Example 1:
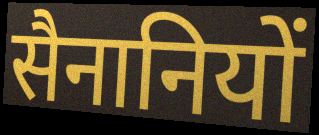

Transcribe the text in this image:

सैनानियों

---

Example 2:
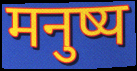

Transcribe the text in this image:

मनुष्‍य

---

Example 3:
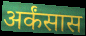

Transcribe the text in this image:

अर्कंसास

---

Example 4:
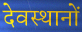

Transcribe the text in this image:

देवस्थानों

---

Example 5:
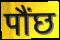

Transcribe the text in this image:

पौंछ